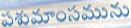
పశుమాంసమును